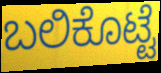
ಬಲಿಕೊಟ್ಟೆ